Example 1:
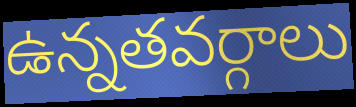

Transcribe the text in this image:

ఉన్నతవర్గాలు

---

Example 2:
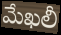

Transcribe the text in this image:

మేఖలీ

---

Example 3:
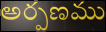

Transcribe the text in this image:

అర్పణము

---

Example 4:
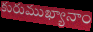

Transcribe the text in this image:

కురుముఖ్యానాం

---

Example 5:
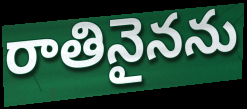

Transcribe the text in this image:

రాతినైనను